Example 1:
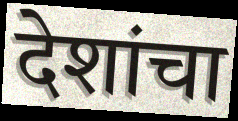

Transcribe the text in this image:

देशांचा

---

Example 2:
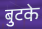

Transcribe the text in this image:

बुटके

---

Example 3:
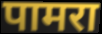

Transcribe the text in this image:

पामरा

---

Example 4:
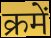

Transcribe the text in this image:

क्रमें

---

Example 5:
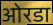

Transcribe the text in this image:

ओरडा